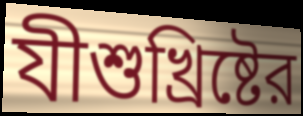
যীশুখ্রিষ্টের